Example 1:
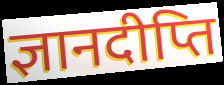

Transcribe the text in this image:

ज्ञानदीप्ति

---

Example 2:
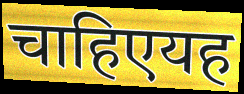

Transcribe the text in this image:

चाहिएयह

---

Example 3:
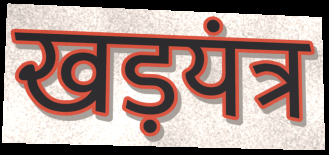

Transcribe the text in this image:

खड़यंत्र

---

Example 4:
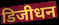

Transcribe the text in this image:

डिजीधन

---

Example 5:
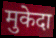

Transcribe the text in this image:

मुकेदा